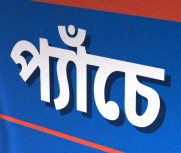
প্যাঁচে